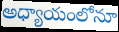
అధ్యాయంలోనూ